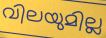
വിലയുമില്ല